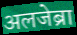
अलजेब्रा